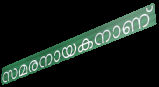
സമരനായകനാണ്